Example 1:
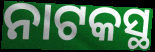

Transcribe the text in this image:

ନାଟକସ୍ଥ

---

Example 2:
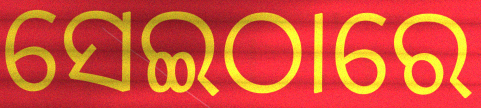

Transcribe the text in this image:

ସେଇଠାରେ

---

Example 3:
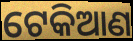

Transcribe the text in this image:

ଟେକିଆଣ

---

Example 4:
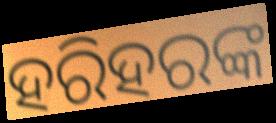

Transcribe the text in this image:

ହରିହରଙ୍କ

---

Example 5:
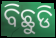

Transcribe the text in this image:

ବିଛୁଡି